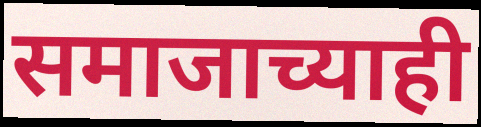
समाजाच्याही